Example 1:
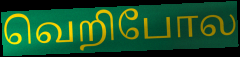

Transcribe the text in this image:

வெறிபோல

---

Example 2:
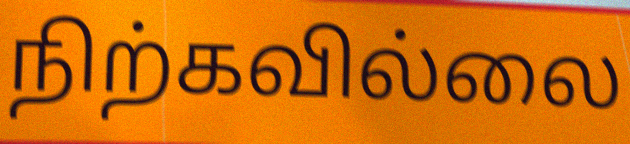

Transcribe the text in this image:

நிற்கவில்லை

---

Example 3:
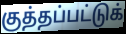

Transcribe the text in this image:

குத்தப்பட்டுக்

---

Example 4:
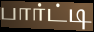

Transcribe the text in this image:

பார்ட்டி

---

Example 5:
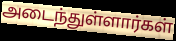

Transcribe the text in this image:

அடைந்துள்ளார்கள்